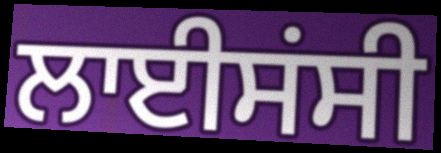
ਲਾਈਸਂਸੀ